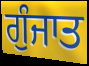
ਗੁੰਜਾਤ